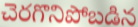
చెరగొనిపోబడిన